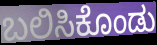
ಬಲಿಸಿಕೊಂಡು